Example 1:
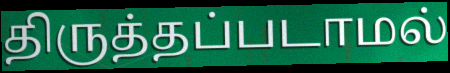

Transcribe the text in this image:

திருத்தப்படாமல்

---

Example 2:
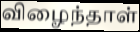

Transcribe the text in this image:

விழைந்தாள்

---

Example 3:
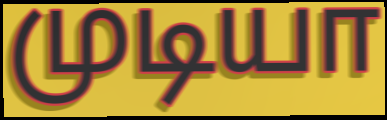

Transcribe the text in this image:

முடியா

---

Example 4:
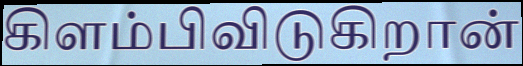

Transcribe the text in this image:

கிளம்பிவிடுகிறான்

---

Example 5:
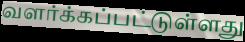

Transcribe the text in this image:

வளர்க்கப்பட்டுள்ளது